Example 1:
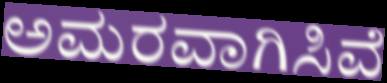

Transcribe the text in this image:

ಅಮರವಾಗಿಸಿವೆ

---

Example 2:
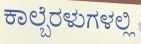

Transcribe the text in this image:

ಕಾಲ್ಬೆರಳುಗಳಲ್ಲಿ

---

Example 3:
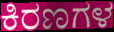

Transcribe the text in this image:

ಕಿರಣಗಳ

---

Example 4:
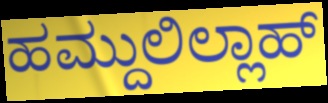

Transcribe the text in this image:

ಹಮ್ದುಲಿಲ್ಲಾಹ್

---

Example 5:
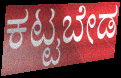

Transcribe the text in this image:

ಕಟ್ಟಬೇಡ